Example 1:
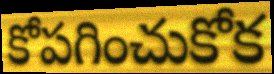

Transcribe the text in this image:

కోపగించుకోక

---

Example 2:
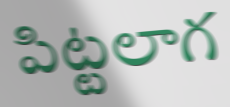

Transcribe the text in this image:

పిట్టలాగ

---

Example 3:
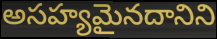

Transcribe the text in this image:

అసహ్యమైనదానిని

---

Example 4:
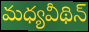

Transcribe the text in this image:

మధ్యవీథిన్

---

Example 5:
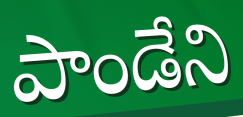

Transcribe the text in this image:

పాండేని